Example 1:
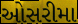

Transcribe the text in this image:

ઓસરીમા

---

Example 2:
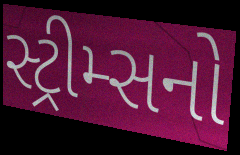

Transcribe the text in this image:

સ્ટ્રીમ્સનો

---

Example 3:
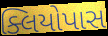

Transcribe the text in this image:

ક્લિયોપાસ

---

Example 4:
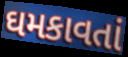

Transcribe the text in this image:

ઘમકાવતાં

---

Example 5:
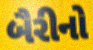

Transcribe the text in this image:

બૈરીનો